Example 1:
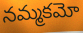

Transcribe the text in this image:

నమ్మకమో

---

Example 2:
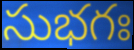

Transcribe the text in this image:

సుభగః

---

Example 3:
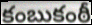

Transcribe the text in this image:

కంబుకంఠీ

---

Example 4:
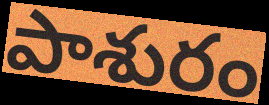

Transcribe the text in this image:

పాశురం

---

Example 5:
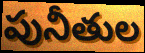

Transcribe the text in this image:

పునీతుల